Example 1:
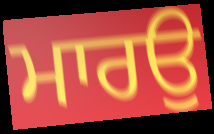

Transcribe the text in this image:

ਮਾਰਉ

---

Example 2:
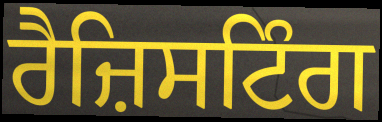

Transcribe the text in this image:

ਰੈਜ਼ਿਸਟਿੰਗ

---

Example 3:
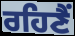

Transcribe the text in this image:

ਰਹਿਣੈਂ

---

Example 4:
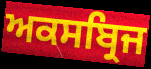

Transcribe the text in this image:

ਅਕਸਬ੍ਰਿਜ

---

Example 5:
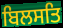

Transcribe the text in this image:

ਬਿਲਸਤਿ